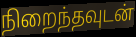
நிறைந்தவுடன்